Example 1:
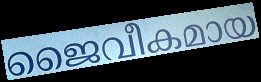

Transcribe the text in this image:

ജൈവീകമായ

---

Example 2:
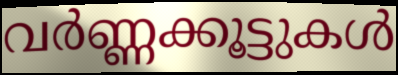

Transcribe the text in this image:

വർണ്ണക്കൂട്ടുകൾ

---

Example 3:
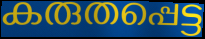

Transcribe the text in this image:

കരുതപ്പെട്ട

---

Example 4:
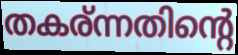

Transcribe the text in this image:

തകര്ന്നതിന്റെ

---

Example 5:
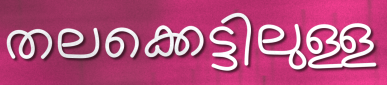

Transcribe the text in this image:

തലക്കെട്ടിലുള്ള